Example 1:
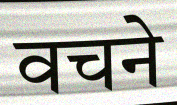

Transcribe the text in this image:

वचने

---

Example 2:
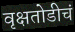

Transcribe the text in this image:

वृक्षतोडीचं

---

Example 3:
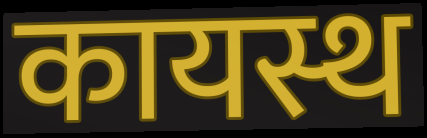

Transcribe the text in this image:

कायस्थ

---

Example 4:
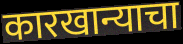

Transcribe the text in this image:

कारखान्याचा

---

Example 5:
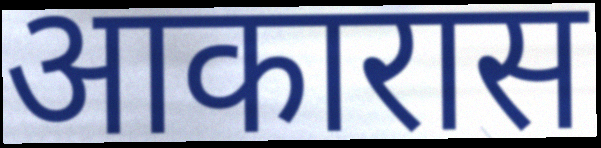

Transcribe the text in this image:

आकारास